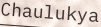
Chaulukya